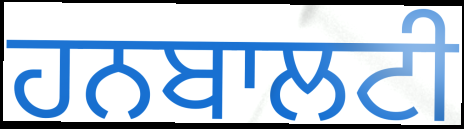
ਹਨਬਾਲਟੀ